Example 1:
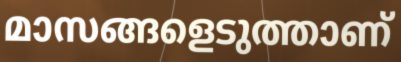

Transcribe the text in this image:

മാസങ്ങളെടുത്താണ്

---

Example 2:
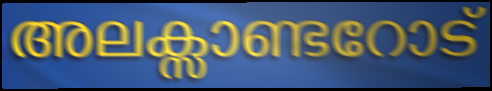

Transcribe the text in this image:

അലക്സാണ്ടറോട്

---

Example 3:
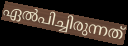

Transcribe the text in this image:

ഏൽപിച്ചിരുന്നത്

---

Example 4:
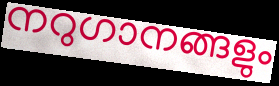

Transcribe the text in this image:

നറുഗാനങ്ങളും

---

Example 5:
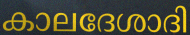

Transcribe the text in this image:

കാലദേശാദി